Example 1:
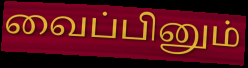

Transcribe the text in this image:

வைப்பினும்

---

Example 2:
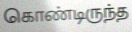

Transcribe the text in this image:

கொண்டிருந்த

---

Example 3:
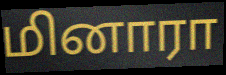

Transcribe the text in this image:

மினாரா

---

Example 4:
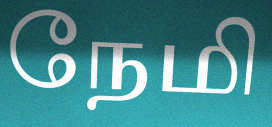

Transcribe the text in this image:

நேமி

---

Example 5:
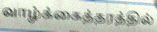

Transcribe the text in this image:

வாழ்க்கைத்தரத்தில்